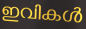
ഇവികൾ